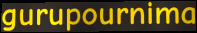
gurupournima